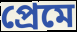
প্ৰেমে